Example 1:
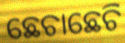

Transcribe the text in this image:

ଛେଚାଛେଚି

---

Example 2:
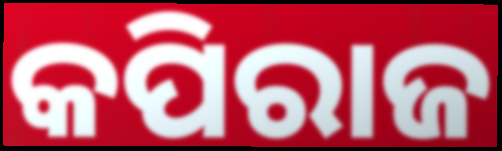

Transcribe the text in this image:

କପିରାଜ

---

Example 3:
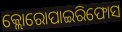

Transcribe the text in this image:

କ୍ଲୋରୋପାଇରିଫୋସ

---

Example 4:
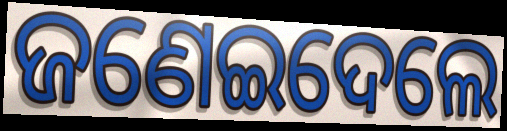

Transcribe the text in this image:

ଜଣେଇଦେଲେ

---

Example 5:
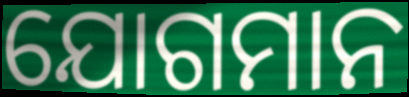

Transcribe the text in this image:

ଯୋଗମାନ